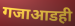
गजाआडही